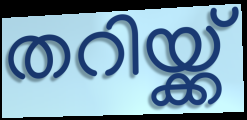
തറിയ്ക്ക്